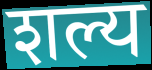
शल्‍य